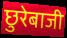
छुरेबाजी